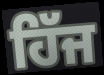
ਹਿੱਜ